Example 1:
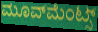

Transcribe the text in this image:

ಮೂವ್‍ಮೆಂಟ್ಸ್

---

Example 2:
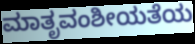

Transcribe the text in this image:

ಮಾತೃವಂಶೀಯತೆಯ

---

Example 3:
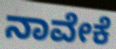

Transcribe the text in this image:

ನಾವೇಕೆ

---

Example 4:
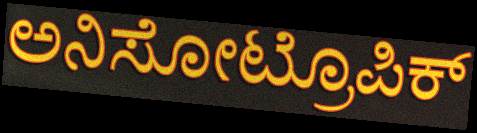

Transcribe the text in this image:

ಅನಿಸೋಟ್ರೊಪಿಕ್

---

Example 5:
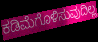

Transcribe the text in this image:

ಕಡಿಮೆಗೊಳಿಸುವುದಿಲ್ಲ